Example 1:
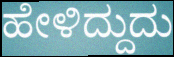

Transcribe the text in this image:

ಹೇಳಿದ್ದುದು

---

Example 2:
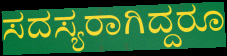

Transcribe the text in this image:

ಸದಸ್ಯರಾಗಿದ್ದರೂ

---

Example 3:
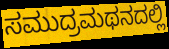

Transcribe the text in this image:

ಸಮುದ್ರಮಥನದಲ್ಲಿ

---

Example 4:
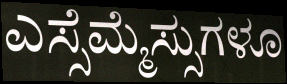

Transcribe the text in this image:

ಎಸ್ಸೆಮ್ಮೆಸ್ಸುಗಳೂ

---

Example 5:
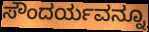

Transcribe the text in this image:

ಸೌಂದರ್ಯವನ್ನೂ